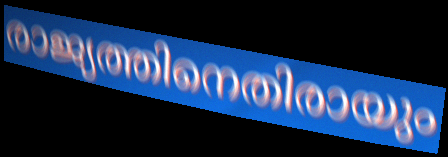
രാജ്യത്തിനെതിരായും